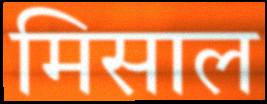
मिसाल